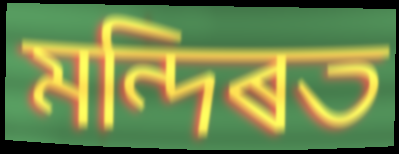
মন্দিৰত